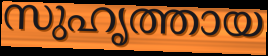
സുഹൃത്തായ